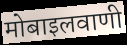
मोबाइलवाणी